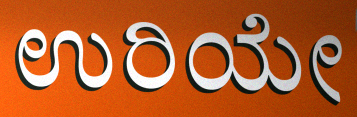
ಉರಿಯೇ